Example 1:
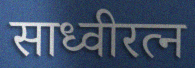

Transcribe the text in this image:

साध्वीरत्न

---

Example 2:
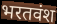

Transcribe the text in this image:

भरतवंश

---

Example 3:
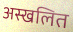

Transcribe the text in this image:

अस्खलित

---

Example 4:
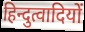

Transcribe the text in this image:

हिन्दुत्वादियों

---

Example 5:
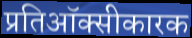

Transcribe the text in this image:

प्रतिऑक्सीकारक